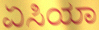
ಏಸಿಯಾ